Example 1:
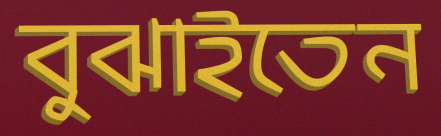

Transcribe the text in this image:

বুঝাইতেন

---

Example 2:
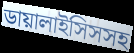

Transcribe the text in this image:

ডায়ালাইসিসসহ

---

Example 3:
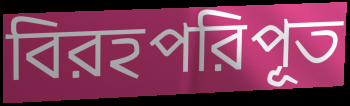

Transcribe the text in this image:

বিরহপরিপূত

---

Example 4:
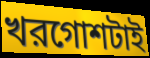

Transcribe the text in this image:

খরগোশটাই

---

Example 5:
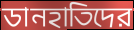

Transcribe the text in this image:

ডানহাতিদের